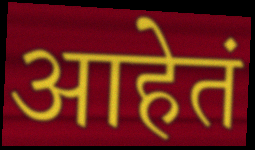
आहेतं